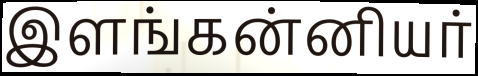
இளங்கன்னியர்